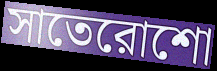
সাতেরোশো